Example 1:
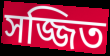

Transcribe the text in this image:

সজ্জিত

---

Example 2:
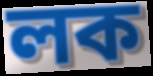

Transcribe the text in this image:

লক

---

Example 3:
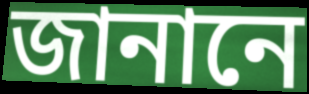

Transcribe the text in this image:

জানানে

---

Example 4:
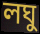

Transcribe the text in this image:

লঘু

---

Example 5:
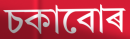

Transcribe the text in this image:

চকাবোৰ